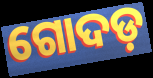
ଗୋଦଡ଼